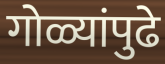
गोळ्यांपुढे